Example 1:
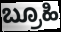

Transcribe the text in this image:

ಬ್ರೂಹಿ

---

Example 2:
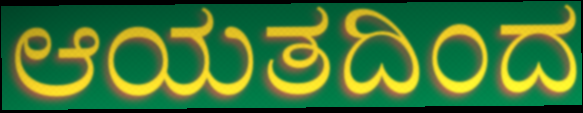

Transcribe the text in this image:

ಆಯತದಿಂದ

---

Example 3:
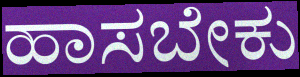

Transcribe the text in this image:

ಹಾಸಬೇಕು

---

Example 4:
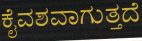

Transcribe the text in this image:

ಕೈವಶವಾಗುತ್ತದೆ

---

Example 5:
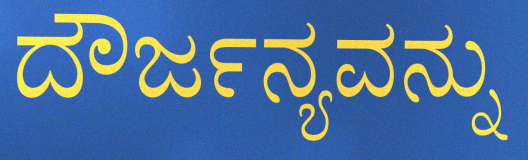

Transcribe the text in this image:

ದೌರ್ಜನ್ಯವನ್ನು